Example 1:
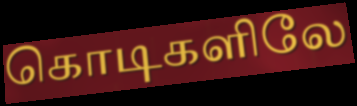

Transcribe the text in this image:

கொடிகளிலே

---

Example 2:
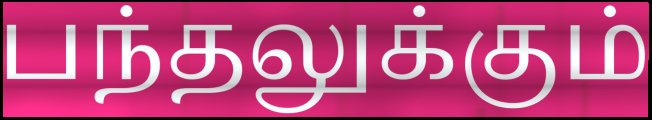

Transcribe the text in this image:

பந்தலுக்கும்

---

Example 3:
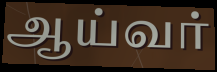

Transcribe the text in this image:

ஆய்வர்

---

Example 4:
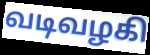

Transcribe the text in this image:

வடிவழகி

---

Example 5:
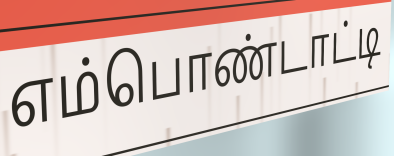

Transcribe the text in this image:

எம்பொண்டாட்டி